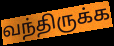
வந்திருக்க